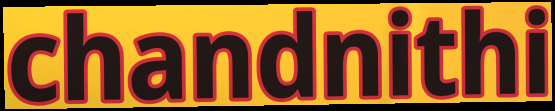
chandnithi